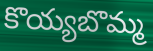
కొయ్యబొమ్మ